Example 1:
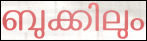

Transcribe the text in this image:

ബുക്കിലും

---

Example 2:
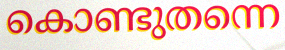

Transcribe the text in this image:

കൊണ്ടുതന്നെ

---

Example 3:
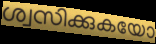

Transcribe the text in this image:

ശ്വസിക്കുകയോ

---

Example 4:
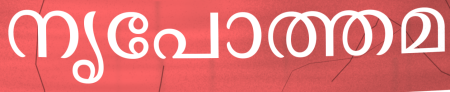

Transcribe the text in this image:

നൃപോത്തമ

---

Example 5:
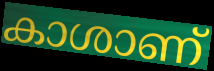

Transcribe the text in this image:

കാശാണ്